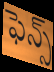
ఫెన్స్